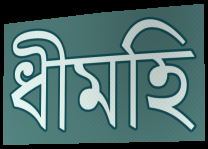
ধীমহি